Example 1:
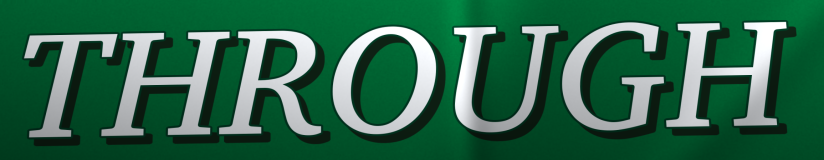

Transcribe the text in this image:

THROUGH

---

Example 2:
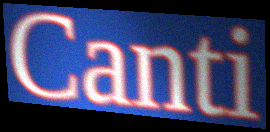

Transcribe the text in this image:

Canti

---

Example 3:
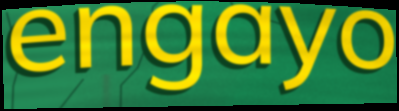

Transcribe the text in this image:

engayo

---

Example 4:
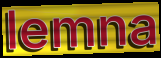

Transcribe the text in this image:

lemna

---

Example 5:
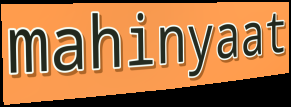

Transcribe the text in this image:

mahinyaat